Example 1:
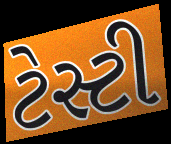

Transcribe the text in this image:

ટેસ્ટી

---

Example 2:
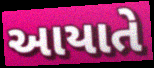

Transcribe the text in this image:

આયાતે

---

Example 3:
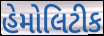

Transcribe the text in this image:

હેમોલિટીક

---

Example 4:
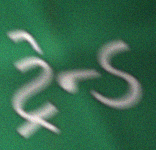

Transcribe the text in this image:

ટ્રેન્ડ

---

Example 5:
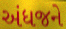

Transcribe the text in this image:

અંધજને